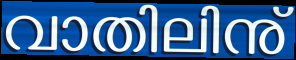
വാതിലിനു്